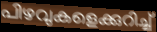
പിഴവുകളെക്കുറിച്ച്